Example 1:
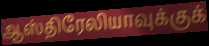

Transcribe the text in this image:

ஆஸ்திரேலியாவுக்குக்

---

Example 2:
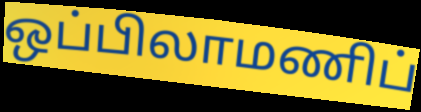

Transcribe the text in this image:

ஒப்பிலாமணிப்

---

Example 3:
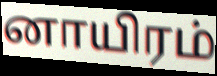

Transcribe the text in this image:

னாயிரம்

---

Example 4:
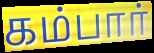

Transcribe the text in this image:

கம்பார்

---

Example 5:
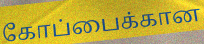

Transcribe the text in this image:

கோப்பைக்கான